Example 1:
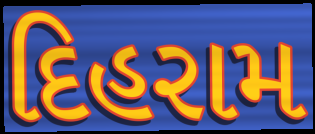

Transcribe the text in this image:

દિહરામ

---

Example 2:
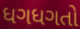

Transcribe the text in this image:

ધગધગતો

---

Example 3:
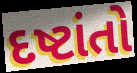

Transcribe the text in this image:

દષ્ટાંતો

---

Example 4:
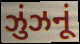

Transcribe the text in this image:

ઝુંઝનૂં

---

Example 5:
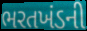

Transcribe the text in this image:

ભરતખંડની